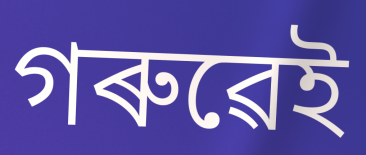
গৰুৱেই